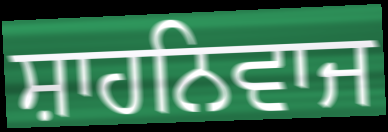
ਸ਼ਾਹਨਿਵਾਜ